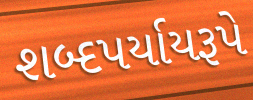
શબ્દપર્યાયરૂપે